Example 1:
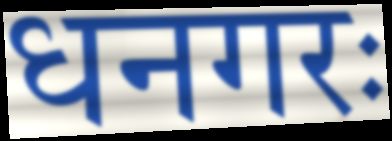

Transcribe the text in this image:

धनगरः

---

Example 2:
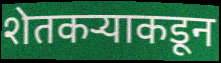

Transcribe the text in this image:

शेतकऱ्याकडून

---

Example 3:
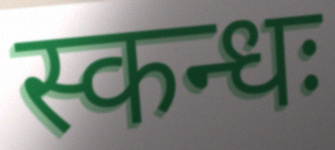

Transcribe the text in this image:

स्कन्धः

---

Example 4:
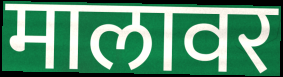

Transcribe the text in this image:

मालावर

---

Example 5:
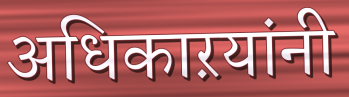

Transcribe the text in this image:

अधिकाऱयांनी